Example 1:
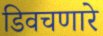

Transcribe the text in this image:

डिवचणारे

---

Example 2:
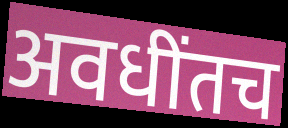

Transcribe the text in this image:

अवधींतच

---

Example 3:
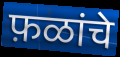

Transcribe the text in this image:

फ़ळांचे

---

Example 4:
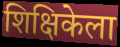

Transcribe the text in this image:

शिक्षिकेला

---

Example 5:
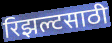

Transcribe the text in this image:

रिझल्टसाठी